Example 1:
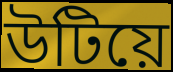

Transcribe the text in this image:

উটিয়ে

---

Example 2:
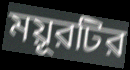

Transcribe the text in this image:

ময়ূরটির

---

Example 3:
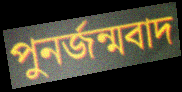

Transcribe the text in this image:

পুনর্জন্মবাদ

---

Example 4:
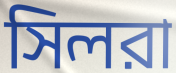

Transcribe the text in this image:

সিলরা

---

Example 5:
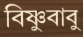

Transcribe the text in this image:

বিষ্ণুবাবু